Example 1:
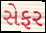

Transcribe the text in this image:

સેફર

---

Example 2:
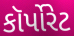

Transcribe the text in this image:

કૉર્પોરેટ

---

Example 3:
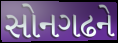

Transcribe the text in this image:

સોનગઢને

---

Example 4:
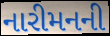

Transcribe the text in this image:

નારીમનની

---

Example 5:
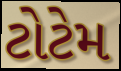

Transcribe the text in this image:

ટોટેમ